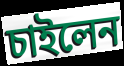
চাইলেন